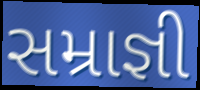
સમ્રાજ્ઞી